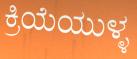
ಕ್ರಿಯೆಯುಳ್ಳ